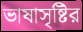
ভাষাসৃষ্টির